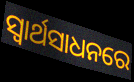
ସ୍ବାର୍ଥସାଧନରେ